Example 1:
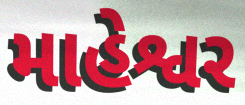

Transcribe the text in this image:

માહેશ્વર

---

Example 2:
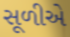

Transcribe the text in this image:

સૂળીએ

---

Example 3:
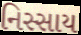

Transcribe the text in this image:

નિસ્સાય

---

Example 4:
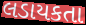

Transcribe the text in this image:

લડાયકતા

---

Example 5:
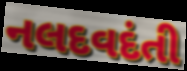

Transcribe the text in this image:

નલદવદંતી